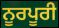
ਨੂਰਪੂਰੀ